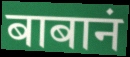
बाबानं